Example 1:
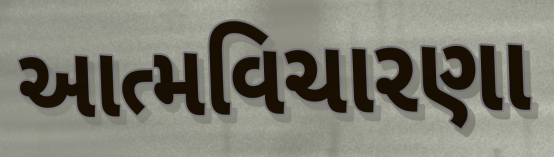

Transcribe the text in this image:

આત્મવિચારણા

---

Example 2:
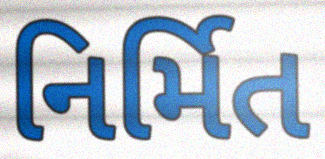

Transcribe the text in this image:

નિર્મિત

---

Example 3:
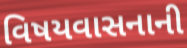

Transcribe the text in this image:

વિષયવાસનાની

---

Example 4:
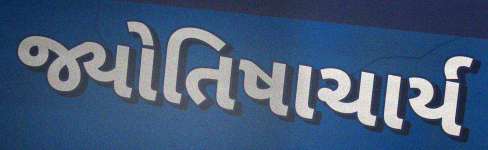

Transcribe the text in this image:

જ્યોતિષાચાર્ય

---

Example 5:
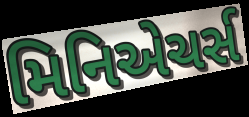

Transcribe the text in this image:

મિનિએચર્સ